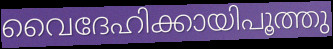
വൈദേഹിക്കായിപൂത്തു